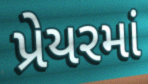
પ્રેયરમાં